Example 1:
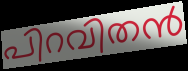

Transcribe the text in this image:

പിറവിതൻ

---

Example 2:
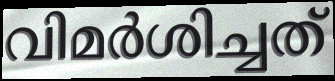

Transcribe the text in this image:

വിമർശിച്ചത്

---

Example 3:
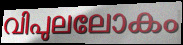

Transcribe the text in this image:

വിപുലലോകം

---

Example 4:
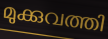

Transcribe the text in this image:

മുക്കുവത്തി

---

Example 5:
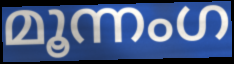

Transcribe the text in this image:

മൂന്നംഗ